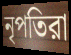
নৃপতিরা